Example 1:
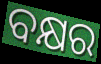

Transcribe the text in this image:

ବକ୍ଷର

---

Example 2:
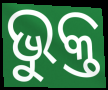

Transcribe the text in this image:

ଭୁକ୍ତ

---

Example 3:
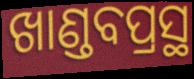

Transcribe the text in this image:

ଖାଣ୍ଡବପ୍ରସ୍ଥ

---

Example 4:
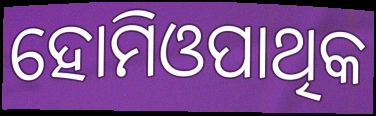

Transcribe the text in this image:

ହୋମିଓପାଥିକ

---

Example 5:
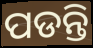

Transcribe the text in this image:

ପଡନ୍ତି